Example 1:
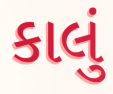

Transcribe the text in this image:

કાલું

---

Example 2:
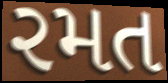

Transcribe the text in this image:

રમત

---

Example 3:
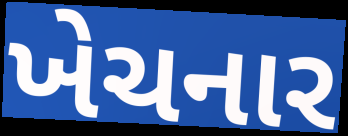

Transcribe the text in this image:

ખેચનાર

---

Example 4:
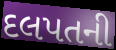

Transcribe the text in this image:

દલપતની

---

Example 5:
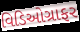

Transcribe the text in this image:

વિડિઓગ્રાફર